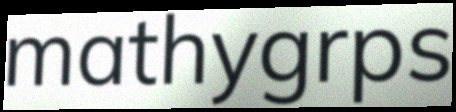
mathygrps